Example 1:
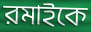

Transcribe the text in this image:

রমাইকে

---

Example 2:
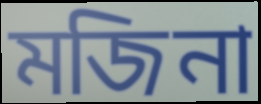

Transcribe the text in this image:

মজিনা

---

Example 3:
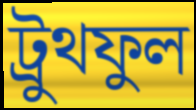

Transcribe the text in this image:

ট্রুথফুল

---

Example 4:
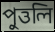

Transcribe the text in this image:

পুত্তলি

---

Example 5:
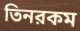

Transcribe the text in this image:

তিনরকম